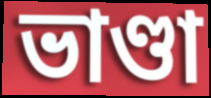
ভাণ্ডা